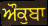
ਔਕੁਬਾ